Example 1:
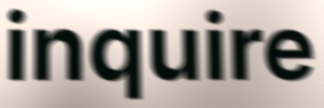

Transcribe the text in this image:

inquire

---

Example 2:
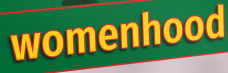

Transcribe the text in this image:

womenhood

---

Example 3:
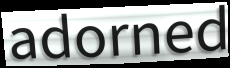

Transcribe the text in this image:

adorned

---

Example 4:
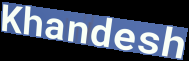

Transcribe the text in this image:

Khandesh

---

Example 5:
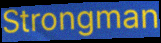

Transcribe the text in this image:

Strongman